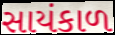
સાયંકાળ